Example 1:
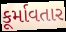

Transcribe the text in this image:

કૂર્માવતાર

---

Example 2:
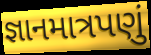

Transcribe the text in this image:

જ્ઞાનમાત્રપણું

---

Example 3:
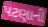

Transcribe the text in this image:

પટણાની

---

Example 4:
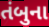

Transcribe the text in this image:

તંબુના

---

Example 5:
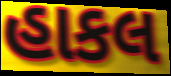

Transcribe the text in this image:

હાકલ